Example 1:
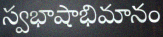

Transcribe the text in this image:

స్వభాషాభిమానం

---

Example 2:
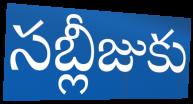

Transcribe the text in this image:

సబ్లీజుకు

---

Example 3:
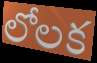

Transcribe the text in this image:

లోలక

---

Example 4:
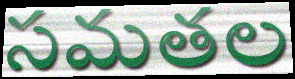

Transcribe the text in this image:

సమతల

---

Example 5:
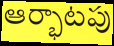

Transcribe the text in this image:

ఆర్భాటపు